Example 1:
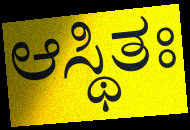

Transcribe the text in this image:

ಆಸ್ಥಿತಃ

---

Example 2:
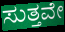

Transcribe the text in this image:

ಸುತ್ತವೇ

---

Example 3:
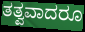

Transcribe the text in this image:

ತತ್ವವಾದರೂ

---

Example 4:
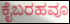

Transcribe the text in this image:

ಕೈಬರಹವೂ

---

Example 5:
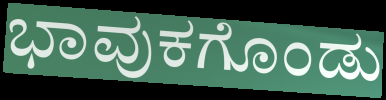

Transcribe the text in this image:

ಭಾವುಕಗೊಂಡು